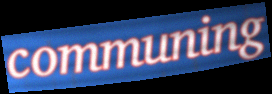
communing